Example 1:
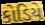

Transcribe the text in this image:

કોડિયે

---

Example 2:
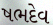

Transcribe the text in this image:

ષભદેવ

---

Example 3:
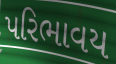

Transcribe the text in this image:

પરિભાવય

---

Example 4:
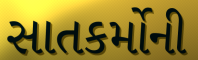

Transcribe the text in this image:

સાતકર્મોની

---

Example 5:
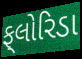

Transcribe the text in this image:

ફ્‌લોરિડા